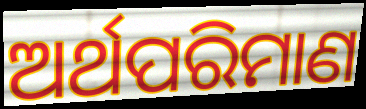
ଅର୍ଥପରିମାଣ